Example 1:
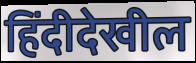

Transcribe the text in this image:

हिंदीदेखील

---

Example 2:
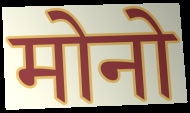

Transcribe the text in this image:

मोनो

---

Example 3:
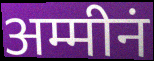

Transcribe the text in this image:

अम्मीनं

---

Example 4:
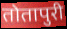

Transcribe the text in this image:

तोतापुरी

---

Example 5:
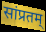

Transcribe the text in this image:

सांप्रतम्